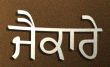
ਜੈਕਾਰੇ